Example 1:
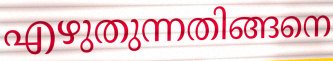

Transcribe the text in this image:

എഴുതുന്നതിങ്ങനെ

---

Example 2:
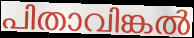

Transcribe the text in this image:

പിതാവിങ്കൽ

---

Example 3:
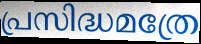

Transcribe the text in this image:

പ്രസിദ്ധമത്രേ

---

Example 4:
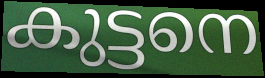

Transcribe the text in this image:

കുട്ടനെ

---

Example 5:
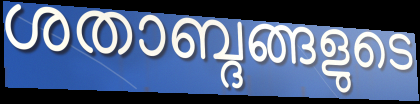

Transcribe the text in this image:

ശതാബ്ദങ്ങളുടെ